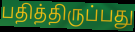
பதித்திருப்பது